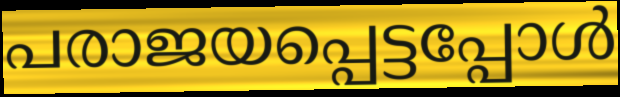
പരാജയപ്പെട്ടപ്പോൾ